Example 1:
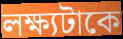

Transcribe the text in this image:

লক্ষ্যটাকে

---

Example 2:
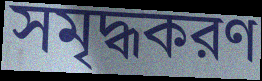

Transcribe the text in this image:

সমৃদ্ধকরণ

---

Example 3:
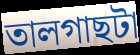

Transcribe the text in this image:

তালগাছটা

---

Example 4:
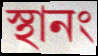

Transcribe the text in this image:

স্থানং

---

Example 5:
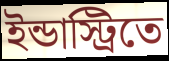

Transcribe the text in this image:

ইন্ডাস্ট্রিতে